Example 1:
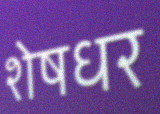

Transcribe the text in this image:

शेषधर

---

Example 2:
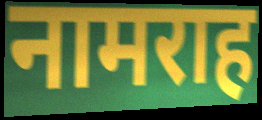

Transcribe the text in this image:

नामराह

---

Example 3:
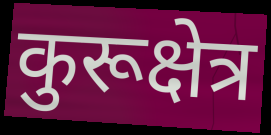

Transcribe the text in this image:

कुरूक्षेत्र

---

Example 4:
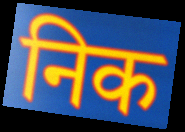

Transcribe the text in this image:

निक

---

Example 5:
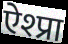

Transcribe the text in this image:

ऐश्प्रा